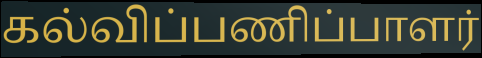
கல்விப்பணிப்பாளர்